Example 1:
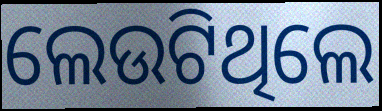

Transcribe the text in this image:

ଲେଉଟିଥିଲେ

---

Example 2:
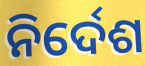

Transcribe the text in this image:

ନିର୍ଦେଶ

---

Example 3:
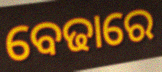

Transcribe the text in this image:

ବେଢାରେ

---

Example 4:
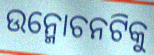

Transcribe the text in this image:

ଉନ୍ମୋଚନଟିକୁ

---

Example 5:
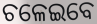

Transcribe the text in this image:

ଚଳେଇବେ